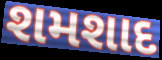
શમશાદ